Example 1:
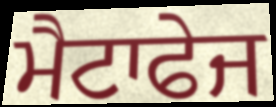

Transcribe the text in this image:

ਮੈਟਾਫੇਜ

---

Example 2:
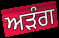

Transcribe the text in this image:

ਅੜੰਗ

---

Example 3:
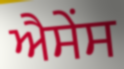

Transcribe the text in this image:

ਐਸੇਂਸ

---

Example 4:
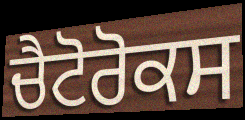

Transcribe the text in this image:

ਚੈਟੋਰੋਕਸ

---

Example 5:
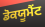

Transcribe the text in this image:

ਡੋਕਯੂਮੈਂਟ